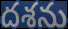
దశను